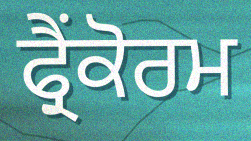
ਫ੍ਰੈਂਕੋਰਮ